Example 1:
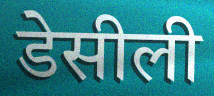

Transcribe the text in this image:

डेसीली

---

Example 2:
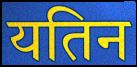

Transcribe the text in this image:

यतिन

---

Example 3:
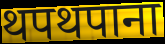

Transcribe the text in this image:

थपथपाना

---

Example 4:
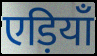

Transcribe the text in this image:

एड़ियाँ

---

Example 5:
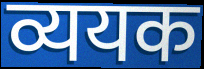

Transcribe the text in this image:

व्ययक